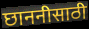
छाननीसाठी